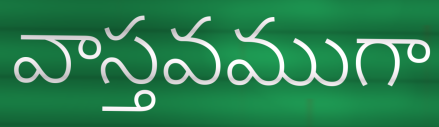
వాస్తవముగా